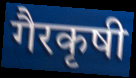
गैरकृषी